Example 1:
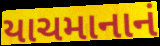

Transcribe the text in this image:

યાચમાનાનં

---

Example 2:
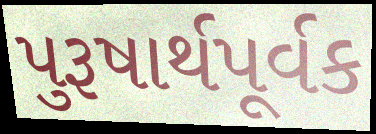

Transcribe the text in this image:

પુરૂષાર્થપૂર્વક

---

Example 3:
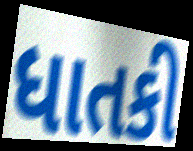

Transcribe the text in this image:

ધાતકી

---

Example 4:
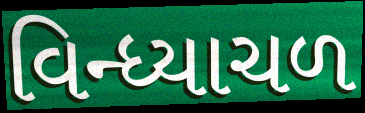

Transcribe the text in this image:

વિન્ધ્યાચળ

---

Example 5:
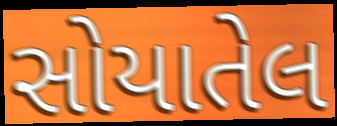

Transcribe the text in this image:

સોયાતેલ